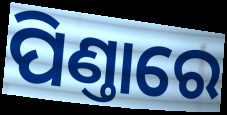
ପିଣ୍ତାରେ